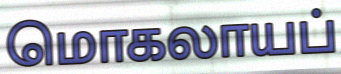
மொகலாயப்